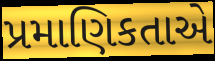
પ્રમાણિકતાએ